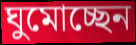
ঘুমোচ্ছেন